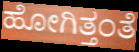
ಹೋಗಿತ್ತಂತೆ